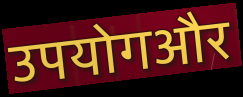
उपयोगऔर